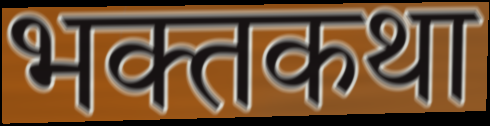
भक्तकथा